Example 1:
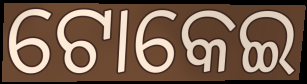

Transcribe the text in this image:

ଟୋକେଇ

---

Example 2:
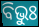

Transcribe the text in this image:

ବିଭୁଃ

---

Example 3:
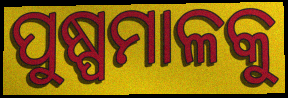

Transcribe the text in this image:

ପୁଷ୍ପମାଳକୁ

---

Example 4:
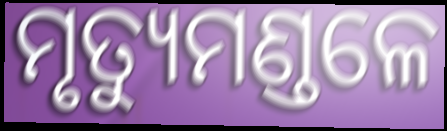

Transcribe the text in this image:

ମୃତ୍ୟୁମଣ୍ଡଳେ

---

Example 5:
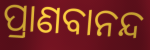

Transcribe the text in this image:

ପ୍ରାଣବାନନ୍ଦ